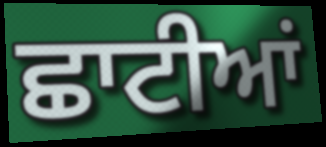
ਛਾਟੀਆਂ